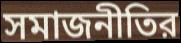
সমাজনীতির